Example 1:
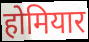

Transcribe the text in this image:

होमियार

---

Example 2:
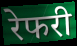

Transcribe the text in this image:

रेफरी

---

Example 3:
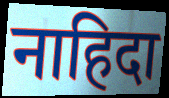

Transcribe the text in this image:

नाहिदा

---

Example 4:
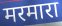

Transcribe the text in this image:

मरमारा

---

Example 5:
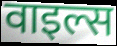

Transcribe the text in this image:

वाइल्स